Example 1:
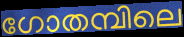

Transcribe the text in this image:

ഗോതമ്പിലെ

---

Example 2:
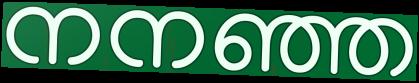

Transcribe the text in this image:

നനഞ്ഞ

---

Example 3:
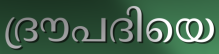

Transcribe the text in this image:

ദ്രൗപദിയെ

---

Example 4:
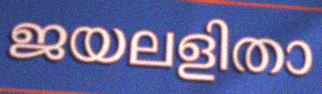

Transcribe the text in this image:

ജയലളിതാ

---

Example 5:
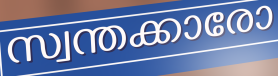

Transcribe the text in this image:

സ്വന്തക്കാരോ